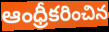
ఆంధ్రీకరించిన